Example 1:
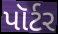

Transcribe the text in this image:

પૉર્ટર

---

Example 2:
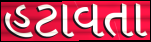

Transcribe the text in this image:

હટાવતા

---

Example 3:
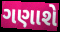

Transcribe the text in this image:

ગણાશે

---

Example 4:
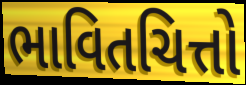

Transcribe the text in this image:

ભાવિતચિત્તો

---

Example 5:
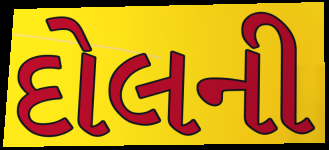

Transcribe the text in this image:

દોલની